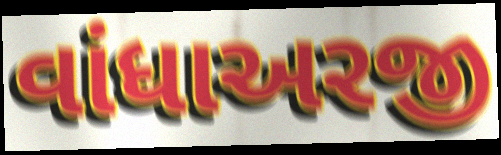
વાંધાઅરજી